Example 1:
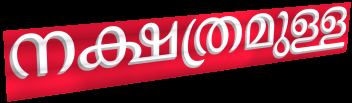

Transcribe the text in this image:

നക്ഷത്രമുള്ള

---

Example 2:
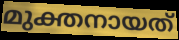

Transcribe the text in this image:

മുക്തനായത്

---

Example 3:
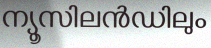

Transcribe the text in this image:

ന്യൂസിലൻഡിലും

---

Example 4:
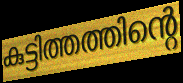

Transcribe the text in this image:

കുട്ടിത്തത്തിന്റെ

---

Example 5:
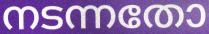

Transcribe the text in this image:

നടന്നതോ